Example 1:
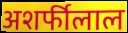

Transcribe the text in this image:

अशर्फीलाल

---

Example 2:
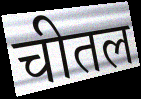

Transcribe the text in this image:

चीतल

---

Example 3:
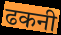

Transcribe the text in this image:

ढकनी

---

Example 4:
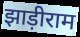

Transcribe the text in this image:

झाड़ीराम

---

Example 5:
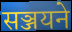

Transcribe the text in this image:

सञ्जयने